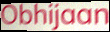
Obhijaan